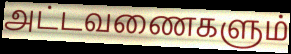
அட்டவணைகளும்